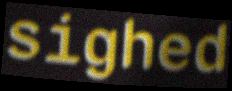
sighed